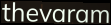
thevaram